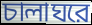
চালাঘরে